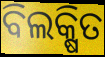
ବିଲକ୍ଷିତ